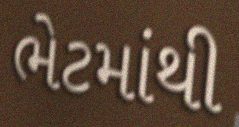
ભેટમાંથી